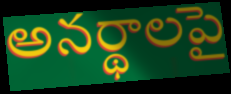
అనర్థాలపై